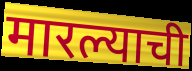
मारल्याची